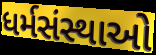
ધર્મસંસ્થાઓ